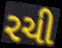
રચી